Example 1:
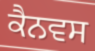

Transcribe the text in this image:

ਕੈਨਵਸ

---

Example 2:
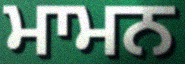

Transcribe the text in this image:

ਮਾਮਨ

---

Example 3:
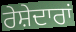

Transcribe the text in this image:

ਰੇਸ਼ੇਦਾਰਾਂ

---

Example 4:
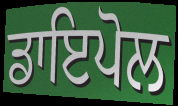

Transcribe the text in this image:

ਡਾਇਪੋਲ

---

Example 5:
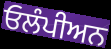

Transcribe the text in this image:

ਓਲੰਪੀਅਨ